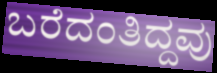
ಬರೆದಂತಿದ್ದವು